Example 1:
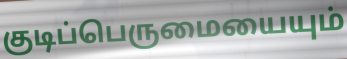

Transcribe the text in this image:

குடிப்பெருமையையும்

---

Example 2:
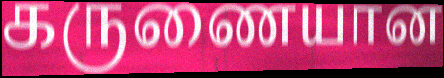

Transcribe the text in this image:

கருணையான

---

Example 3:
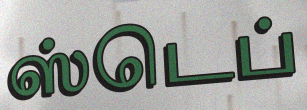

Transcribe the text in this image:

ஸ்டெப்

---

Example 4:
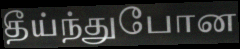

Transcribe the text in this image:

தீய்ந்துபோன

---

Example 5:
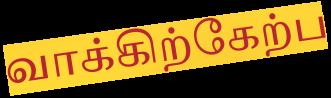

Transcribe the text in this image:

வாக்கிற்கேற்ப